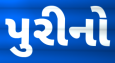
પુરીનો